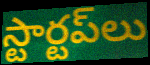
స్టార్టప్‌లు